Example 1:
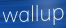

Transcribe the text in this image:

wallup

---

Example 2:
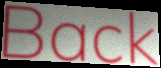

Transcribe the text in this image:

Back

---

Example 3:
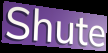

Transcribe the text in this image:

Shute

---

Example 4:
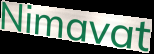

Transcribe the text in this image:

Nimavat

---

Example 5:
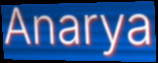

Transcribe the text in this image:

Anarya